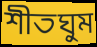
শীতঘুম